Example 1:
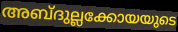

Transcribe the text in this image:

അബ്ദുല്ലക്കോയയുടെ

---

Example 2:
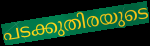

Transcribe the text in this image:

പടക്കുതിരയുടെ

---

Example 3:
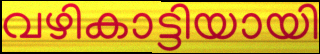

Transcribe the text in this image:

വഴികാട്ടിയായി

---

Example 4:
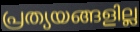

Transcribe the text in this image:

പ്രത്യയങ്ങളില്ല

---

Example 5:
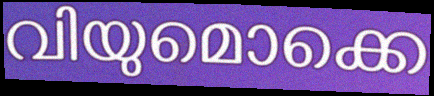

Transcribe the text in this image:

വിയുമൊക്കെ